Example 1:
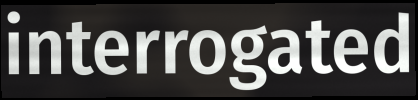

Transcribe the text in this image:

interrogated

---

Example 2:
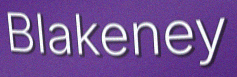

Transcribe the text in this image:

Blakeney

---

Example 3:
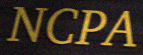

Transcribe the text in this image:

NCPA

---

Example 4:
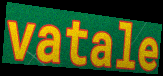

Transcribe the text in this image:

vatale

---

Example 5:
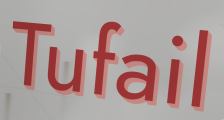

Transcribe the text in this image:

Tufail